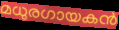
മധുരഗായകൻ